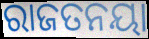
ରାଜତନୟା